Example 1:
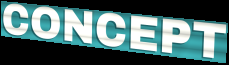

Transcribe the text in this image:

CONCEPT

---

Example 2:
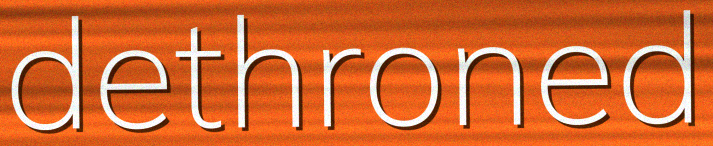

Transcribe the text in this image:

dethroned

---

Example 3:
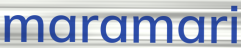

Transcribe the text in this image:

maramari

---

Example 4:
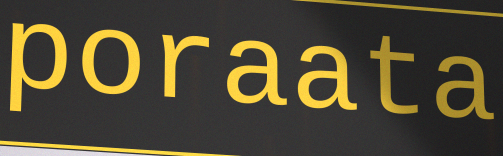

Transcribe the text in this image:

poraata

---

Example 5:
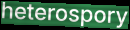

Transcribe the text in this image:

heterospory